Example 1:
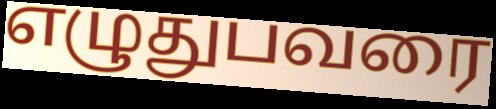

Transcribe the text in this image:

எழுதுபவரை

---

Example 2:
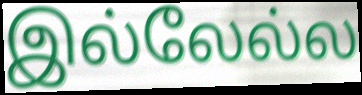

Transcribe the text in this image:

இல்லேல்ல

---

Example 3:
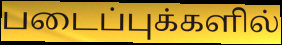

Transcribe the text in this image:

படைப்புக்களில்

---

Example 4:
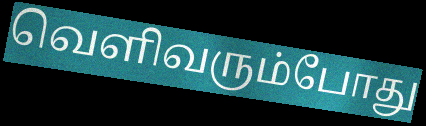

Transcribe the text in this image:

வெளிவரும்போது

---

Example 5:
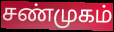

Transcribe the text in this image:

சண்முகம்